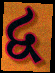
દ્વ